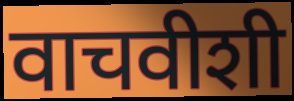
वाचवीशी